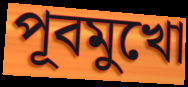
পূবমুখো